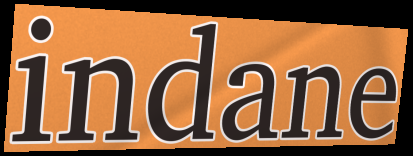
indane